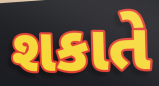
શકાતે